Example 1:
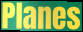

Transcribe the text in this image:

Planes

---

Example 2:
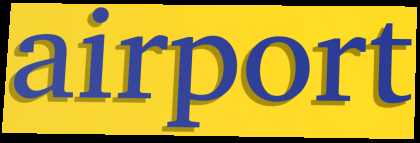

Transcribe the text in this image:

airport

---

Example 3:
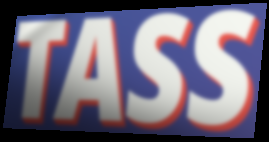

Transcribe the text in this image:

TASS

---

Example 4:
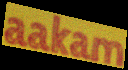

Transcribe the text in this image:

aakam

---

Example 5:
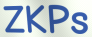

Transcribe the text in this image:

ZKPs